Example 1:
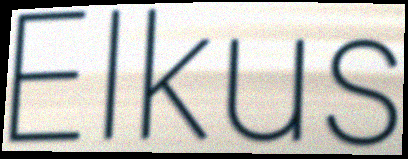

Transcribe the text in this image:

Elkus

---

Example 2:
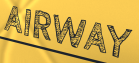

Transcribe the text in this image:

AIRWAY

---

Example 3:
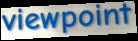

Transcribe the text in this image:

viewpoint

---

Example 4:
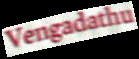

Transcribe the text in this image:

Vengadathu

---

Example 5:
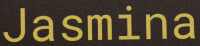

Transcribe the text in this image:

Jasmina